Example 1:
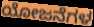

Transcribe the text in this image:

ಯೋಜನೆಗಳ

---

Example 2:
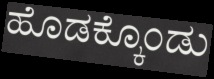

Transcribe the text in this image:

ಹೊಡಕ್ಕೊಂಡು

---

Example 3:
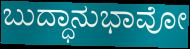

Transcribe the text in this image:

ಬುದ್ಧಾನುಭಾವೋ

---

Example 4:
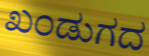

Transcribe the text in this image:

ಖಂಡುಗದ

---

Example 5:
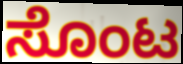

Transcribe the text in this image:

ಸೊಂಟ